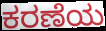
ಕರಣೆಯ